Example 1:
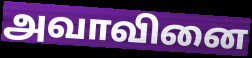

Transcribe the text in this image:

அவாவினை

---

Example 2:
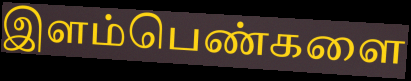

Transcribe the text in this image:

இளம்பெண்களை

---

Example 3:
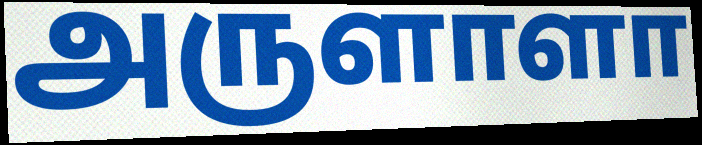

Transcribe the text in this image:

அருளாளா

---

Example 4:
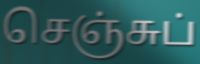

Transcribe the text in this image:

செஞ்சுப்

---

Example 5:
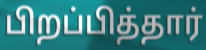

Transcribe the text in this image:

பிறப்பித்தார்